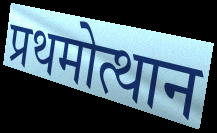
प्रथमोत्थान